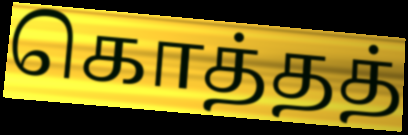
கொத்தத்